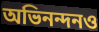
অভিনন্দনও